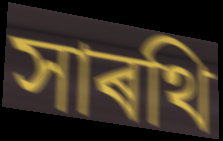
সাৰথি